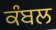
ਕੰਬਲ